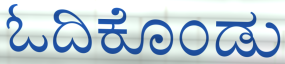
ಓದಿಕೊಂಡು